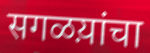
सगळय़ांचा